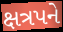
ક્ષત્રપને